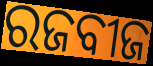
ରଜବୀଜ